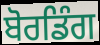
ਬੋਰਡਿੰਗ